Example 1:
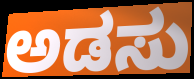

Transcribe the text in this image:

ಅಡಸು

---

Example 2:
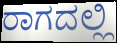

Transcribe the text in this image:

ರಾಗದಲ್ಲಿ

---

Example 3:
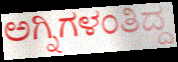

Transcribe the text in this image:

ಅಗ್ನಿಗಳಂತಿದ್ದ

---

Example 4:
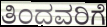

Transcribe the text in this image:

ತಿಂದವರಿಗೆ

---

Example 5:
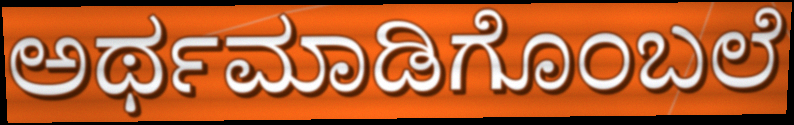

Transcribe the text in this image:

ಅರ್ಥಮಾಡಿಗೊಂಬಲೆ